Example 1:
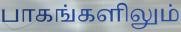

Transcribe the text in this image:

பாகங்களிலும்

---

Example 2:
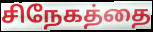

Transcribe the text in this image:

சிநேகத்தை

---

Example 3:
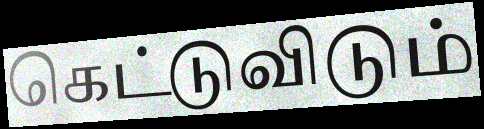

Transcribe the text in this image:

கெட்டுவிடும்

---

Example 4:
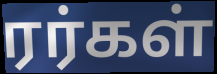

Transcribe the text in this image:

ரர்கள்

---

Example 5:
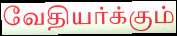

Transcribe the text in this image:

வேதியர்க்கும்